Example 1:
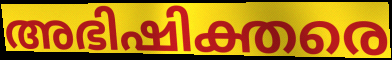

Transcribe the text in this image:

അഭിഷിക്തരെ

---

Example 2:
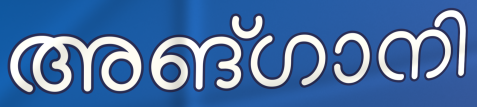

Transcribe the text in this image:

അങ്ഗാനി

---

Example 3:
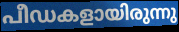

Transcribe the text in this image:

പീഡകളായിരുന്നു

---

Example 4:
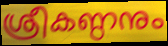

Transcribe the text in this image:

ശ്രീകണ്ഠനും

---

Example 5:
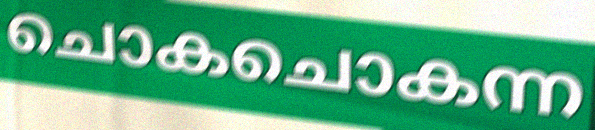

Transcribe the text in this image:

ചൊകചൊകന്ന